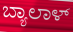
ಬ್ಯಾಲಾಳ್